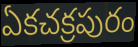
ఏకచక్రపురం